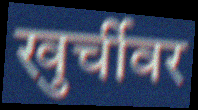
खुर्चीवर